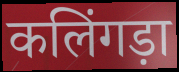
कलिंगड़ा